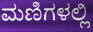
ಮಣಿಗಳಲ್ಲಿ